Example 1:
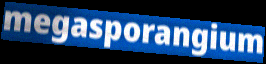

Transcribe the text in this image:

megasporangium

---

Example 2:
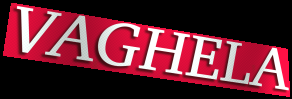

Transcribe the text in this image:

VAGHELA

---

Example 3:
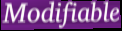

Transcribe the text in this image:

Modifiable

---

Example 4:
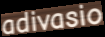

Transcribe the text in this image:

adivasio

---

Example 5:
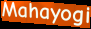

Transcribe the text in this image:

Mahayogi